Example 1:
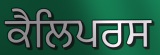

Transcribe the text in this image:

ਕੈਲਿਪਰਸ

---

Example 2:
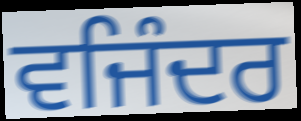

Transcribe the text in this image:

ਵਜਿੰਦਰ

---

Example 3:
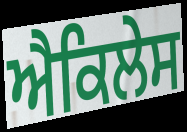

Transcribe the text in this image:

ਐਕਿਲੇਸ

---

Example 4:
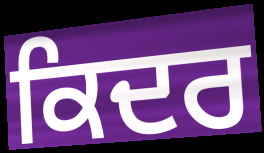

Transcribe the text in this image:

ਕਿਦਰ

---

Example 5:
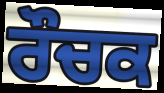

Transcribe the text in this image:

ਰੌਚਕ